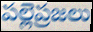
పల్లెప్రజలు